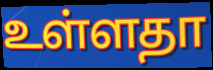
உள்ளதா